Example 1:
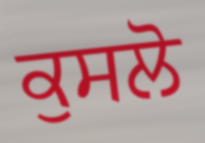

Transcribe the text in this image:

ਕੁਸਲੋ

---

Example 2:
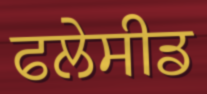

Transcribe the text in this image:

ਫਲੇਸੀਡ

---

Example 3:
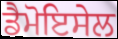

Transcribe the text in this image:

ਡੈਮੋਇਸੇਲ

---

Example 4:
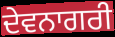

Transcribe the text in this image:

ਦੇਵਨਾਗਰੀ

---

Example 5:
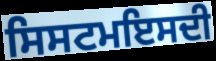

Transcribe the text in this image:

ਸਿਸਟਮਇਸਦੀ